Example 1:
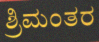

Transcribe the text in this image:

ಶ್ರಿಮಂತರ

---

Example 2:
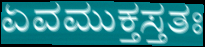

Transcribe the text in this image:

ಏವಮುಕ್ತಸ್ತತಃ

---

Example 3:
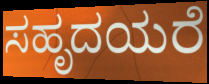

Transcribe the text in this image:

ಸಹೃದಯರೆ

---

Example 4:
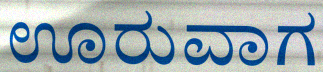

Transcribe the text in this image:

ಊರುವಾಗ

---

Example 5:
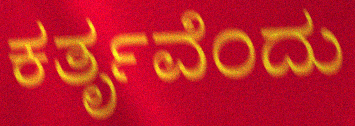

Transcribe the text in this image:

ಕರ್ತೃವೆಂದು